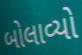
બોલાવ્યો